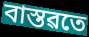
বাস্তৱতে